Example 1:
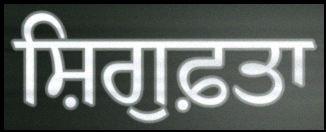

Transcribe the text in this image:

ਸ਼ਿਗੁਫ਼ਤਾ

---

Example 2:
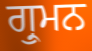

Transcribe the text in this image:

ਗ੍ਰੁਮਨ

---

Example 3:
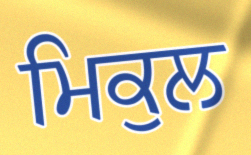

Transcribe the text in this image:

ਮਿਕੁਲ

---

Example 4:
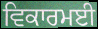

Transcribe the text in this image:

ਵਿਕਾਰਮਈ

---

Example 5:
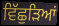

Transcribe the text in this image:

ਵਿੱਛੁੜਿਆਂ